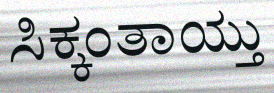
ಸಿಕ್ಕಂತಾಯ್ತು